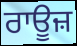
ਰਾਊਜ਼